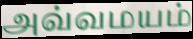
அவ்வமயம்